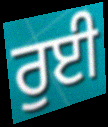
ਰੁਈ